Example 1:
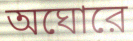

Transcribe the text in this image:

অঘোরে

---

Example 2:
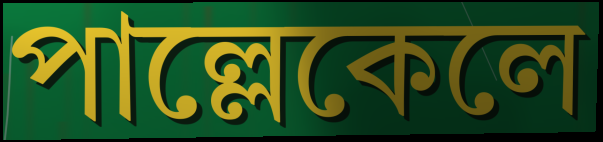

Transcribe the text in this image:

পাল্লেকেলে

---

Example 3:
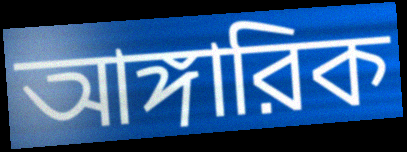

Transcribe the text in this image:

আঙ্গারিক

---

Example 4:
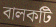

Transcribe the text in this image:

বালকটি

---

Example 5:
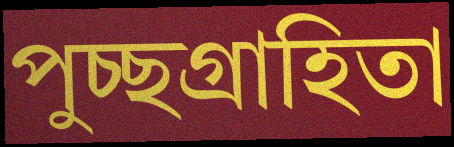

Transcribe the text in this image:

পুচ্ছগ্রাহিতা